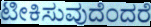
ಟೀಕಿಸುವುದೆಂದರೆ